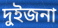
দুইজনা